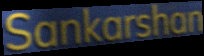
Sankarshan